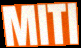
MITI